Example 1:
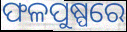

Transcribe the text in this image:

ଫଳପୁଷ୍ପରେ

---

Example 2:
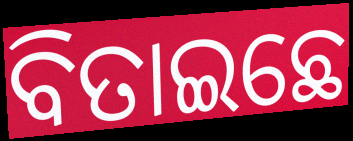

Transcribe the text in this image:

ବିତାଇଛେ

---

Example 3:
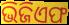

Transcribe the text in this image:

ଭିଜିଏଫ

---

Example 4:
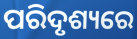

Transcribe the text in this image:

ପରିଦୃଶ୍ୟରେ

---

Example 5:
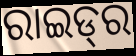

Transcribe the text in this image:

ରାଇଡ୍‌ର